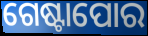
ଗେଷ୍ଟାପୋର